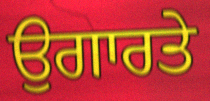
ਉਗਾਰਤੇ